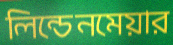
লিন্ডেনমেয়ার